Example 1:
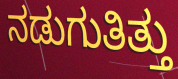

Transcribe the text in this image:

ನಡುಗುತಿತ್ತು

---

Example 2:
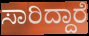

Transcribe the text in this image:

ಸಾರಿದ್ದಾರೆ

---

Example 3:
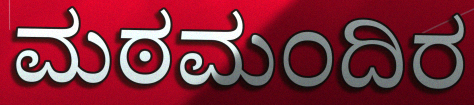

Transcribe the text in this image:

ಮಠಮಂದಿರ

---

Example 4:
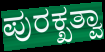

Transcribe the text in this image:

ಪುರಕ್ಖತ್ವಾ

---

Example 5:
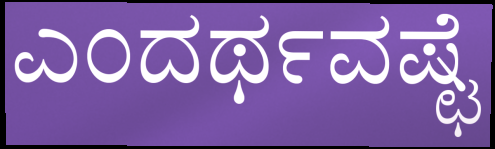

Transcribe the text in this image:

ಎಂದರ್ಥವಷ್ಟೆ